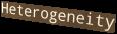
Heterogeneity